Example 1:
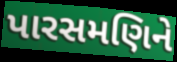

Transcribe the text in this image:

પારસમણિને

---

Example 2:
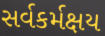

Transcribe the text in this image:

સર્વકર્મક્ષય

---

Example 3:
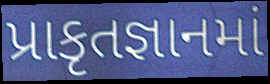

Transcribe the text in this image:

પ્રાકૃતજ્ઞાનમાં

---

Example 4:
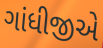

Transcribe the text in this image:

ગાંધીજીએ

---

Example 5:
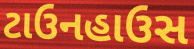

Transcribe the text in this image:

ટાઉનહાઉસ